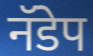
नॅडेप